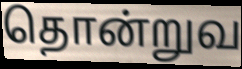
தொன்றுவ